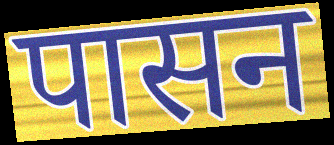
पासन